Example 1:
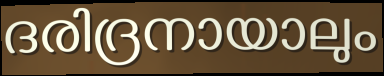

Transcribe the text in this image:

ദരിദ്രനായാലും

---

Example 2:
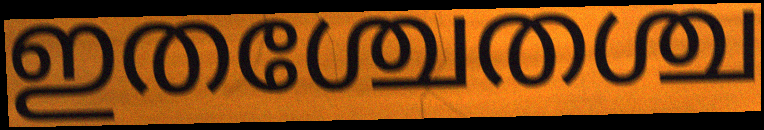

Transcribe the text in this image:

ഇതശ്ചേതശ്ച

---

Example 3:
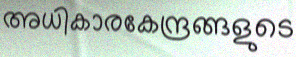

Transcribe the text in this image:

അധികാരകേന്ദ്രങ്ങളുടെ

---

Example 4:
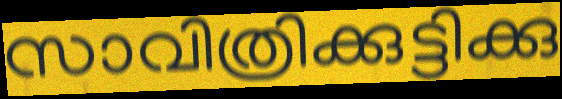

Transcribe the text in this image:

സാവിത്രിക്കുട്ടിക്കു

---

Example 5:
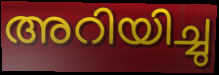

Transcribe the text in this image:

അറിയിച്ചു